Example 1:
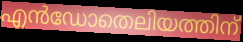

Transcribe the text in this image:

എൻഡോതെലിയത്തിന്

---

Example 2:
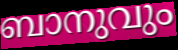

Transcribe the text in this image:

ബാനുവും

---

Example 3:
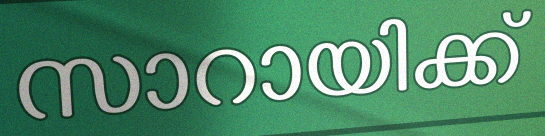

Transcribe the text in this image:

സാറായിക്ക്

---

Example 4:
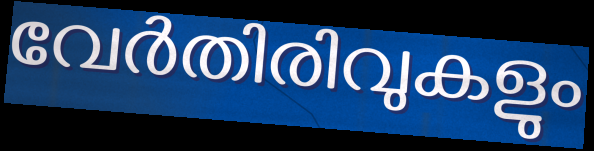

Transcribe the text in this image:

വേർതിരിവുകളും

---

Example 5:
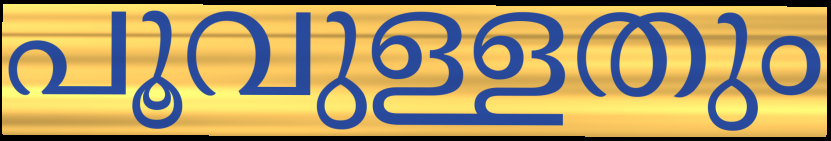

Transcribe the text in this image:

പൂവുള്ളതും